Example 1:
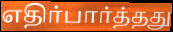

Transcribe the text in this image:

எதிர்பார்த்தது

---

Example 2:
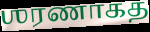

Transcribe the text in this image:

ஶரணாகத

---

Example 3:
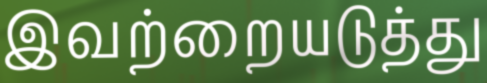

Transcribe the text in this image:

இவற்றையடுத்து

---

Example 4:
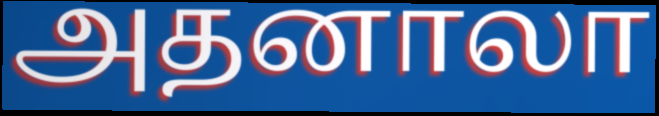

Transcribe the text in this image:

அதனாலா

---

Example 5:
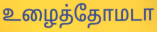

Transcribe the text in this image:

உழைத்தோமடா